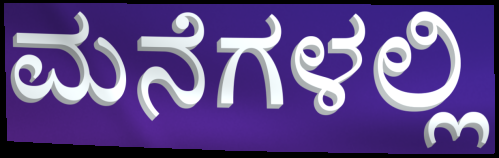
ಮನೆಗಳಲ್ಲಿ